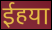
ईहया